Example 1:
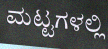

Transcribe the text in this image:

ಮಟ್ಟಗಳಲ್ಲಿ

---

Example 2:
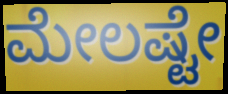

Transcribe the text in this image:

ಮೇಲಷ್ಟೇ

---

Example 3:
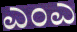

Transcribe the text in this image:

ಎಂಎ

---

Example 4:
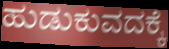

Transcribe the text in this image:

ಹುಡುಕುವದಕ್ಕೆ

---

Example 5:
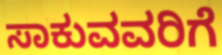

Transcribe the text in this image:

ಸಾಕುವವರಿಗೆ